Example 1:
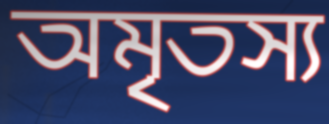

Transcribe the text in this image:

অমৃতস্য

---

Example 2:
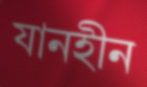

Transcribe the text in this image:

যানহীন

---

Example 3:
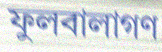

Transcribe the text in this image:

ফুলবালাগণ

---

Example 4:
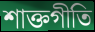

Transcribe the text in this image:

শাক্তগীতি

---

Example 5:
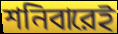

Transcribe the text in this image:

শনিবারেই